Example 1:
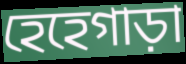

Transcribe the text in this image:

হেহেগাড়া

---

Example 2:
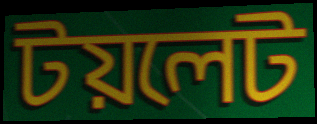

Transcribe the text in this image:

টয়লেট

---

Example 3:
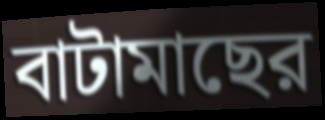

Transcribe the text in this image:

বাটামাছের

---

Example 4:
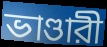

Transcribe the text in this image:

ভাণ্ডারী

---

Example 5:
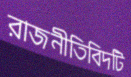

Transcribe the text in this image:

রাজনীতিবিদটি